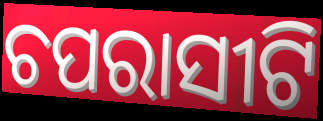
ଚପରାସୀଟି